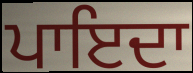
ਪਾਇਦਾ